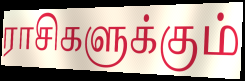
ராசிகளுக்கும்